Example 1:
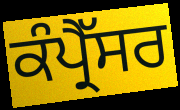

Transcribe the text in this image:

ਕੰਪ੍ਰੈੱਸਰ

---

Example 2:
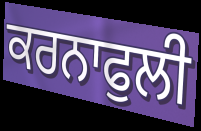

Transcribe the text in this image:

ਕਰਨਾਫੁਲੀ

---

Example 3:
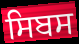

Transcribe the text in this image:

ਸਿਬਸ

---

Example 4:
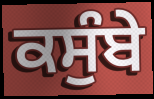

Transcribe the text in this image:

ਕਸੁੰਬੇ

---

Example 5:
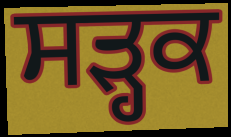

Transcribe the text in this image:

ਸੜ੍ਹਕ